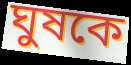
ঘুষকে